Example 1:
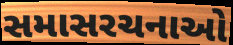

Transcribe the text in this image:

સમાસરચનાઓ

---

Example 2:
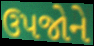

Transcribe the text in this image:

ઉપજોને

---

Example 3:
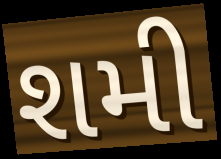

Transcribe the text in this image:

શમી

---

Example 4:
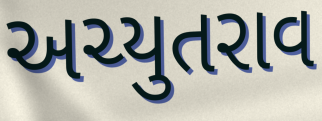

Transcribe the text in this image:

અચ્યુતરાવ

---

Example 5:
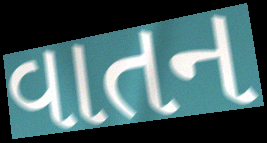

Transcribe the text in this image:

વાતન